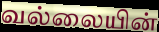
வல்லையின்